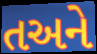
તઅને